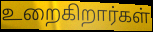
உறைகிறார்கள்